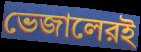
ভেজালেরই